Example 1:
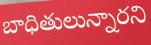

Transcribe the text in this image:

బాధితులున్నారని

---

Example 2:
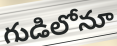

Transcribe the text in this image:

గుడిలోనూ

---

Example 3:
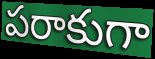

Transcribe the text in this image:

పరాకుగా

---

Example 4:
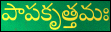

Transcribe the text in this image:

పాపకృత్తమః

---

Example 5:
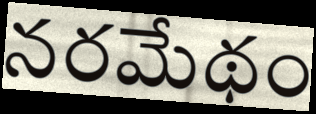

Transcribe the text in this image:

నరమేథం